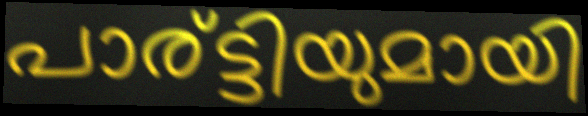
പാര്ട്ടിയുമായി